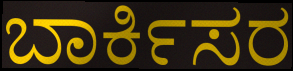
ಬಾರ್ಕಿಸರ